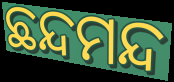
ଛନ୍ଦମନ୍ଦ